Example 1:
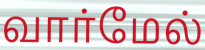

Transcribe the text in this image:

வார்மேல்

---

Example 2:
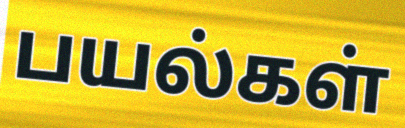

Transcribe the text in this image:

பயல்கள்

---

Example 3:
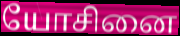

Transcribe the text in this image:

யோசினை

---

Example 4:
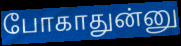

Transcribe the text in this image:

போகாதுன்னு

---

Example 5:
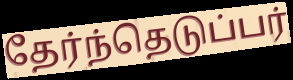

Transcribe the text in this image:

தேர்ந்தெடுப்பர்